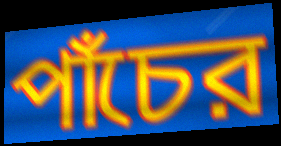
পাঁচের